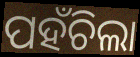
ପହଁଚିଲା